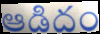
ఆడిదం